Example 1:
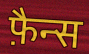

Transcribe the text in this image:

फ़ैन्स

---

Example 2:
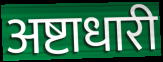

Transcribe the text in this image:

अष्टाधारी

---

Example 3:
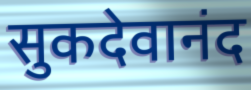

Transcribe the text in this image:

सुकदेवानंद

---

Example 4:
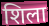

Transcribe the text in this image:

शिला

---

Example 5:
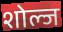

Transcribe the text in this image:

शोल्ज